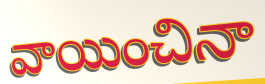
వాయించినా